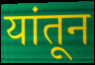
यांतून